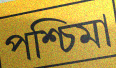
পশ্চিমা